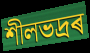
শীলভদ্ৰৰ